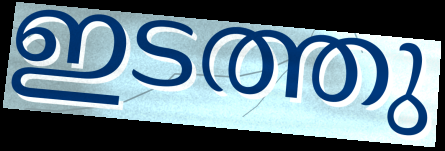
ഇടത്തു